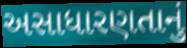
અસાધારણતાનું